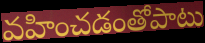
వహించడంతోపాటు